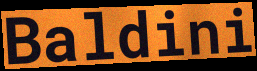
Baldini